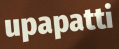
upapatti